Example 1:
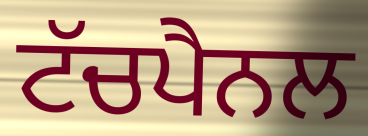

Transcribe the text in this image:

ਟੱਚਪੈਨਲ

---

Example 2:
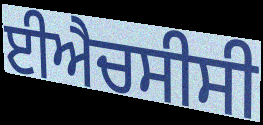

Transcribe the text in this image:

ਈਐਚਸੀਸੀ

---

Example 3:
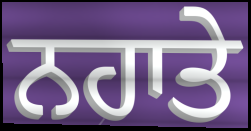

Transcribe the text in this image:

ਨਹਾਤੇ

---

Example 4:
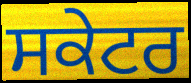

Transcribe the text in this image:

ਸਕੇਟਰ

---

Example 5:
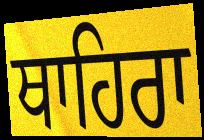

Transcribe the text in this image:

ਥਾਹਿਰਾ